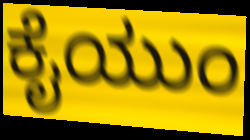
ಕೈಯುಂ